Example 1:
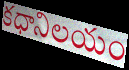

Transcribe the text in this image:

కధానిలయం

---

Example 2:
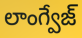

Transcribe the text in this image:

లాంగ్వేజ్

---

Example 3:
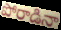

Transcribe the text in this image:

పోరాడినా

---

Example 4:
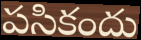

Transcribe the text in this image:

పసికందు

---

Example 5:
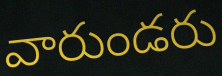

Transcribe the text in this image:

వారుండరు